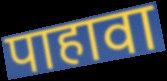
पाहावा